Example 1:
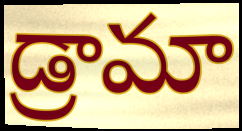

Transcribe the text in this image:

డ్రామా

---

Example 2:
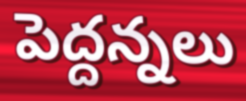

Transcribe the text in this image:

పెద్దన్నలు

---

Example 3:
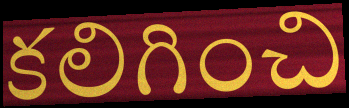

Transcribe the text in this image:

కలిగించి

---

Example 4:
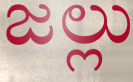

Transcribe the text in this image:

జల్లు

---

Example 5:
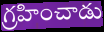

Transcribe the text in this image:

గ్రహించాడు